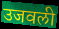
उजवली